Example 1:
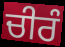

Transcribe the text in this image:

ਚੀਰੰ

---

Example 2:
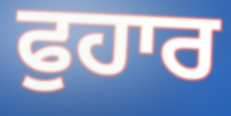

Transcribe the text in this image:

ਫੁਹਾਰ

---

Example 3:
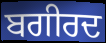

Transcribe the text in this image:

ਬਗੀਰਦ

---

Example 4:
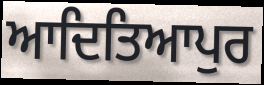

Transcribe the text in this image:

ਆਦਿਤਿਆਪੁਰ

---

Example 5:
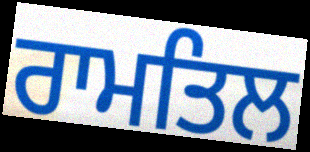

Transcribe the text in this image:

ਰਾਮਤਿਲ